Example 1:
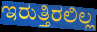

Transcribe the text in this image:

ಇರುತ್ತಿರಲಿಲ್ಲ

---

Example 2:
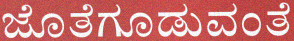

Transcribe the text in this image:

ಜೊತೆಗೂಡುವಂತೆ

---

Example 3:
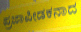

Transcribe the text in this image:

ಪ್ರಜಾಪೀಡಕನಾದ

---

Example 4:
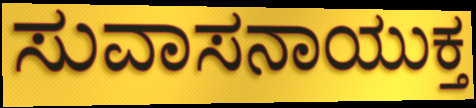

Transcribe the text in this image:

ಸುವಾಸನಾಯುಕ್ತ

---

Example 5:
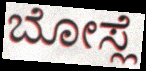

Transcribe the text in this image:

ಬೋಸ್ಲೆ